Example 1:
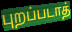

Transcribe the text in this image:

புறப்படாத்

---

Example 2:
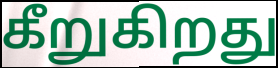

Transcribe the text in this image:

கீறுகிறது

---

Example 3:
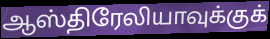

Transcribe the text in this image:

ஆஸ்திரேலியாவுக்குக்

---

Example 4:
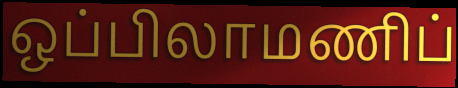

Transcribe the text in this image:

ஒப்பிலாமணிப்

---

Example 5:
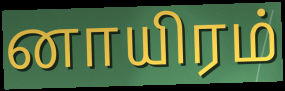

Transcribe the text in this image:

னாயிரம்